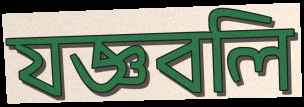
যজ্ঞবলি